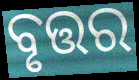
ବୃତ୍ତର